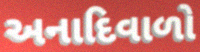
અનાદિવાળો